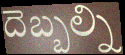
దెబ్బల్ని